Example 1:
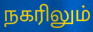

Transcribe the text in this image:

நகரிலும்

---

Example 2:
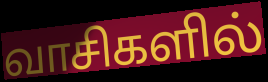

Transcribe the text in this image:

வாசிகளில்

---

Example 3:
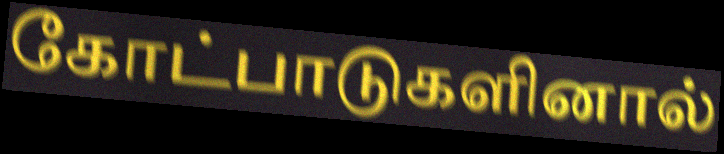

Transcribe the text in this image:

கோட்பாடுகளினால்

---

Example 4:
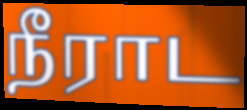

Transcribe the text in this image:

நீராட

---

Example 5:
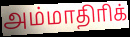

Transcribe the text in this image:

அம்மாதிரிக்